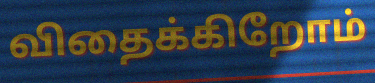
விதைக்கிறோம்